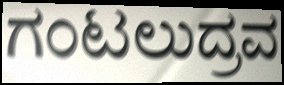
ಗಂಟಲುದ್ರವ